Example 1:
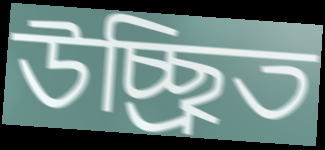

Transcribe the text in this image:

উচ্ছ্রিত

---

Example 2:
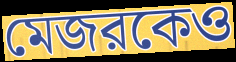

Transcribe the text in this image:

মেজরকেও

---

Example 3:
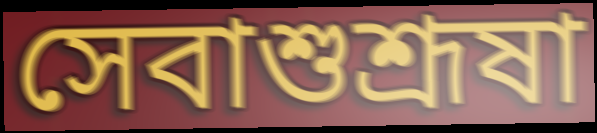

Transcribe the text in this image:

সেবাশুশ্রূষা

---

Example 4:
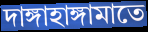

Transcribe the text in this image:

দাঙ্গাহাঙ্গামাতে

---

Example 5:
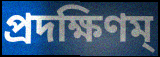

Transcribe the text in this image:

প্রদক্ষিণম্